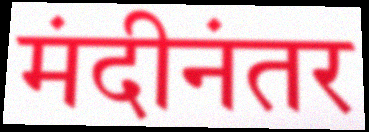
मंदीनंतर